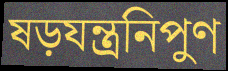
ষড়যন্ত্রনিপুণ